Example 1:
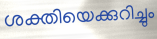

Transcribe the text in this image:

ശക്തിയെക്കുറിച്ചും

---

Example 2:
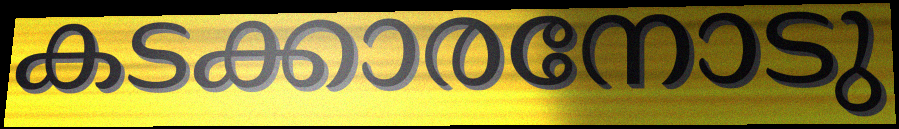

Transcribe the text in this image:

കടക്കാരനോടു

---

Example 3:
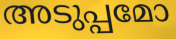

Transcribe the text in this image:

അടുപ്പമോ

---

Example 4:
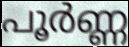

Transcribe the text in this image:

പൂർണ്ണ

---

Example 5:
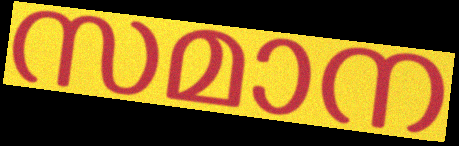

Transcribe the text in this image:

സമാന